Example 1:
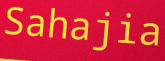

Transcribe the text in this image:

Sahajia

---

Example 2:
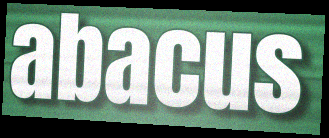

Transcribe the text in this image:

abacus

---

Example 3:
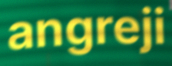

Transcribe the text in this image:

angreji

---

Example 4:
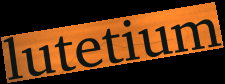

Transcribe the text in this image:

lutetium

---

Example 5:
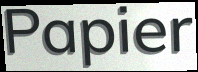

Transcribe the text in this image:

Papier